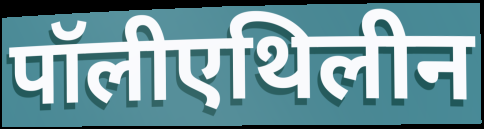
पॉलीएथिलीन